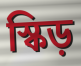
স্কিড়